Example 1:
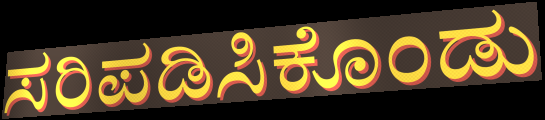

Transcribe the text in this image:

ಸರಿಪಡಿಸಿಕೊಂಡು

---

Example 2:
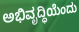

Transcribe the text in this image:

ಅಭಿವೃದ್ಧಿಯೆಂದು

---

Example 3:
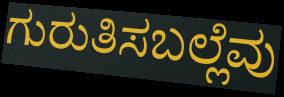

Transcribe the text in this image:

ಗುರುತಿಸಬಲ್ಲೆವು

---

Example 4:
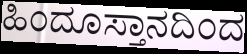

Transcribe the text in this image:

ಹಿಂದೂಸ್ತಾನದಿಂದ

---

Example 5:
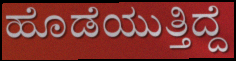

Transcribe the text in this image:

ಹೊಡೆಯುತ್ತಿದ್ದೆ